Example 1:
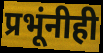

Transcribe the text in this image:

प्रभूंनीही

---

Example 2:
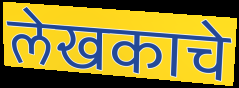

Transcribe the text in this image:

लेखकाचे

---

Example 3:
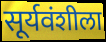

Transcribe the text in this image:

सूर्यवंशीला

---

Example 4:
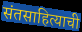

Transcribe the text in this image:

संतसाहित्याची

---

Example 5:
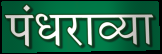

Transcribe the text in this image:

पंधराव्या